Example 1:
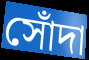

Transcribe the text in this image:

সোঁদা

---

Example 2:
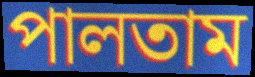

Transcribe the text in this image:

পালতাম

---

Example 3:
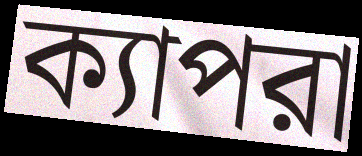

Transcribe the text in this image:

ক্যাপরা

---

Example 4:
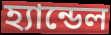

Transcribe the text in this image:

হ্যান্ডেল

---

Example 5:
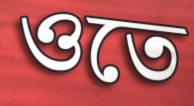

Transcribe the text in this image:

ওতে